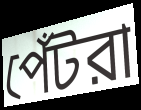
পেঁটরা